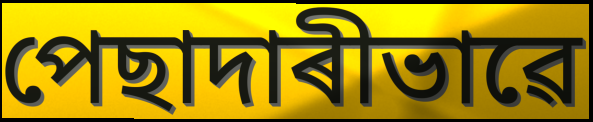
পেছাদাৰীভাৱে